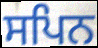
ਸਪਿਨ